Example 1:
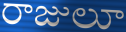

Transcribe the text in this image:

రాజులూ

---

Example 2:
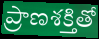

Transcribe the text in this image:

ప్రాణశక్తితో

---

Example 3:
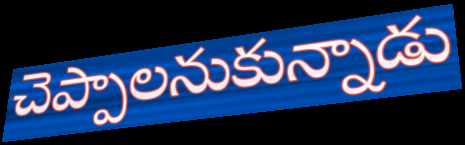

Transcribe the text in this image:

చెప్పాలనుకున్నాడు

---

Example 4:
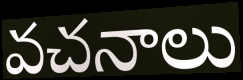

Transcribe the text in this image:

వచనాలు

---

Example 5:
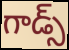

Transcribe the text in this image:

గాడ్స్